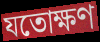
যতোক্ষণ